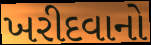
ખરીદવાનો